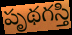
పృథగస్తి